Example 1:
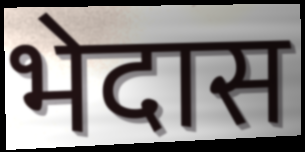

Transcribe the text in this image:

भेदास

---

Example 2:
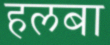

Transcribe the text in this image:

हलबा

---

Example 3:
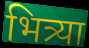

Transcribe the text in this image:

भित्र्या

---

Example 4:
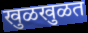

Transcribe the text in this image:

खुळखुळत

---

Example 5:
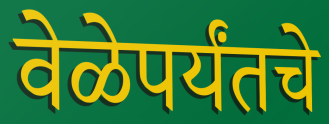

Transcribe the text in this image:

वेळेपर्यंतचे